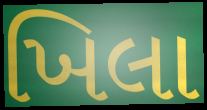
ખિલા